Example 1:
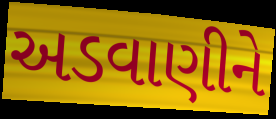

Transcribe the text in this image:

અડવાણીને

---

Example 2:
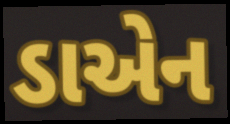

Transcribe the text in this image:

ડાએન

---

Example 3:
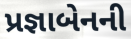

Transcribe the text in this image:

પ્રજ્ઞાબેનની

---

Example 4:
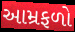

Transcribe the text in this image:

આમ્રફળો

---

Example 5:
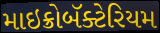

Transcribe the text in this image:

માઇક્રોબૅક્ટેરિયમ